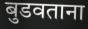
बुडवताना